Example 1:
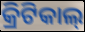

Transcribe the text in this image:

କ୍ରିଟିକାଲ୍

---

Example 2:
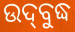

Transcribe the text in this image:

ଉଦ୍‌ବୁଦ୍ଧ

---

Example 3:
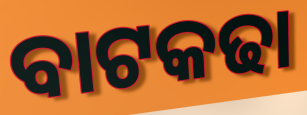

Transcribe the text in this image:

ବାଟକଢା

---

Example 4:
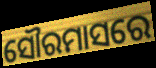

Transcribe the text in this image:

ସୌରମାସରେ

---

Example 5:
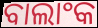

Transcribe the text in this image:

ବାଲାଂକ